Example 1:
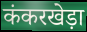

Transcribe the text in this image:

कंकरखेड़ा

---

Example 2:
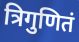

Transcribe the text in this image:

त्रिगुणितं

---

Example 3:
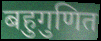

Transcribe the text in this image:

बहुगुणित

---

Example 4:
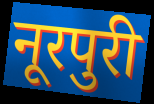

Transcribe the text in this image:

नूरपुरी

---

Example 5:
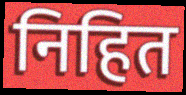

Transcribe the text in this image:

निहित